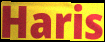
Haris